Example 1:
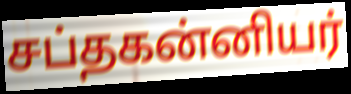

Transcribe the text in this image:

சப்தகன்னியர்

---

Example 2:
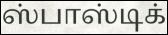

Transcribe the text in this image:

ஸ்பாஸ்டிக்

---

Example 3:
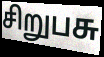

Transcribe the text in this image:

சிறுபசு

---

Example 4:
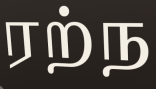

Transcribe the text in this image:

ரற்ந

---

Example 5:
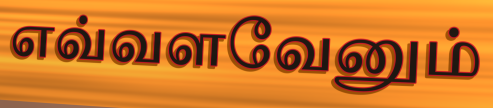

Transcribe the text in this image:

எவ்வளவேனும்